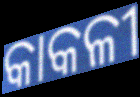
କାକଳୀ